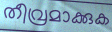
തീവ്രമാക്കുക